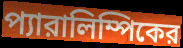
প্যারালিম্পিকের